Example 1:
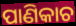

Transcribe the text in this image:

ପାଣିକାଚ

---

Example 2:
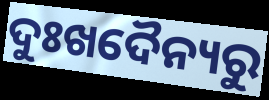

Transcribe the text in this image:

ଦୁଃଖଦୈନ୍ୟରୁ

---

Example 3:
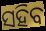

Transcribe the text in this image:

ସହିବ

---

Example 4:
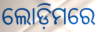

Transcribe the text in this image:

ଲୋଡ଼ିମରେ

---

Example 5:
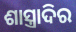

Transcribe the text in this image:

ଶାସ୍ତ୍ରାଦିର